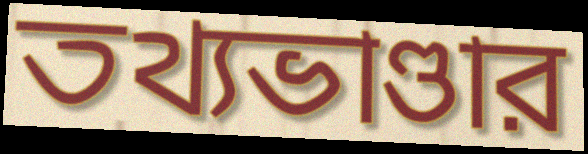
তথ্যভাণ্ডার